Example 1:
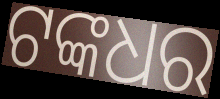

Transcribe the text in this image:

ଟଙ୍କଧର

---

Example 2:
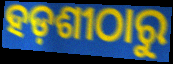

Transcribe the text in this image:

ହଡ଼ଶୀଠାରୁ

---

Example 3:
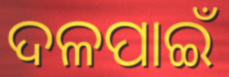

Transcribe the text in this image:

ଦଳପାଇଁ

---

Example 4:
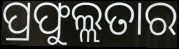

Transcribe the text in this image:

ପ୍ରଫୁଲ୍ଲତାର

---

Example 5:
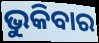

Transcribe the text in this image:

ଭୁକିବାର